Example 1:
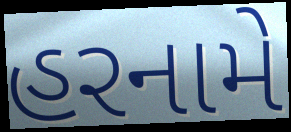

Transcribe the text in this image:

હરનામે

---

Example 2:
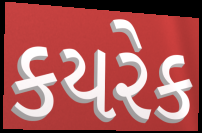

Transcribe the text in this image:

કયરેક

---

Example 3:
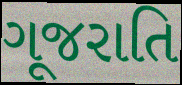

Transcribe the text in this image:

ગૂજરાતિ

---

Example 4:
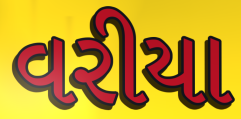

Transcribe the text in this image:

વરીયા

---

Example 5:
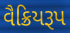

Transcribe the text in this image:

વૈક્રિયરૂપ